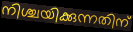
നിശ്ചയിക്കുന്നതിന്